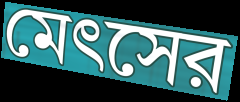
মেৎসের